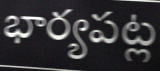
భార్యపట్ల